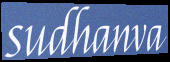
sudhanva